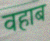
वहाब